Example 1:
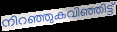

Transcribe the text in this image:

നിറഞ്ഞുകവിഞ്ഞിട്ട്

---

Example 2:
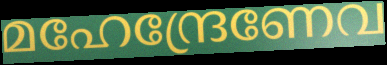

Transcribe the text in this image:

മഹേന്ദ്രേണേവ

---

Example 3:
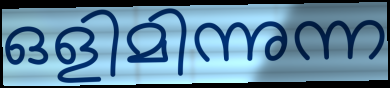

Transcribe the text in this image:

ഒളിമിന്നുന്ന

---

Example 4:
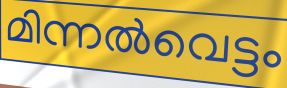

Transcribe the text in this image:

മിന്നൽവെട്ടം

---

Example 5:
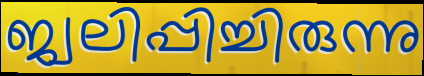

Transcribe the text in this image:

ജ്വലിപ്പിച്ചിരുന്നു